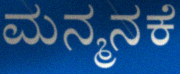
ಮನ್ಮನಕೆ